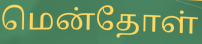
மென்தோள்